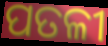
ପତଳୀ